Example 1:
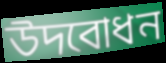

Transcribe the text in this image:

উদবোধন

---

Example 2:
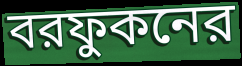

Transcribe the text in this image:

বরফুকনের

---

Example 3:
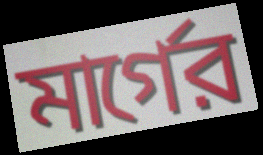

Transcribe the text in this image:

মার্গের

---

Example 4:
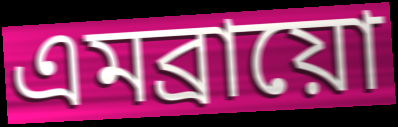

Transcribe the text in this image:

এমব্রায়ো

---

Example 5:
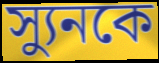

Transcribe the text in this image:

স্যুনকে